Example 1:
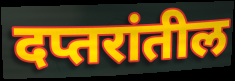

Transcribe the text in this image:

दप्तरांतील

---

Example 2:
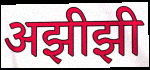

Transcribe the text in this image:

अझीझी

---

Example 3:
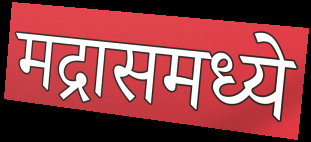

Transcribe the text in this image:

मद्रासमध्ये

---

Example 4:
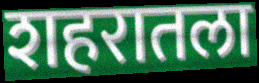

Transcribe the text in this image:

शहरातला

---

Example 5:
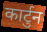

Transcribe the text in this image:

कार्टुन